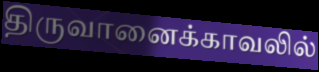
திருவானைக்காவலில்